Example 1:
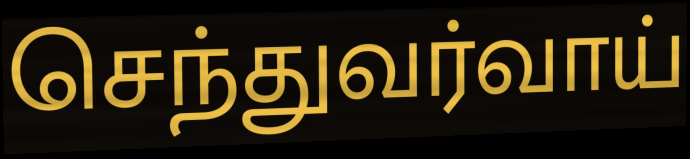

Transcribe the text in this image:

செந்துவர்வாய்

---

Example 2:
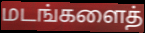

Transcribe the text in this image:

மடங்களைத்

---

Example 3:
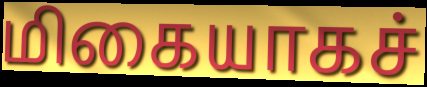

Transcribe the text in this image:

மிகையாகச்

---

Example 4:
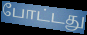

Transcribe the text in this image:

போட்டது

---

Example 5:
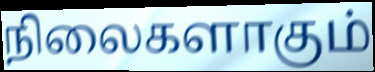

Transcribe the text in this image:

நிலைகளாகும்